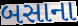
બસાના